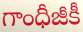
గాంధీజీకీ